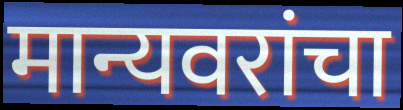
मान्यवरांचा